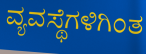
ವ್ಯವಸ್ಥೆಗಳಿಗಿಂತ